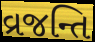
વ્રજન્તિ